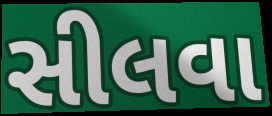
સીલવા